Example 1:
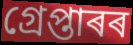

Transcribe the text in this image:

গ্ৰেপ্তাৰৰ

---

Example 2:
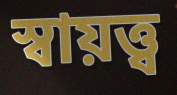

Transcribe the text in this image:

স্বায়ত্ত্ব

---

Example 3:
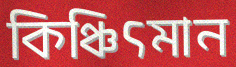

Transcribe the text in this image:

কিঞ্চিৎমান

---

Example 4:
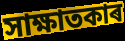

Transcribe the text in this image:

সাক্ষাতকাৰ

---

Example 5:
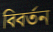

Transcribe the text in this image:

বিবৰ্তন